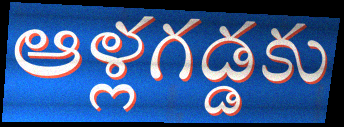
ఆళ్లగడ్డకు